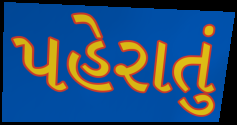
પહેરાતું